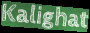
Kalighat